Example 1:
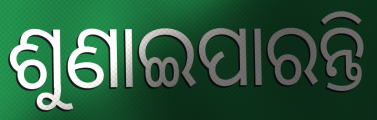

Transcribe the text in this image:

ଶୁଣାଇପାରନ୍ତି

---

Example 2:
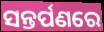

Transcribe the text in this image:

ସନ୍ତର୍ପଣରେ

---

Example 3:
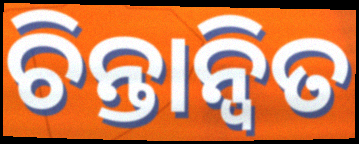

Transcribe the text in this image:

ଚିନ୍ତାନ୍ୱିତ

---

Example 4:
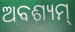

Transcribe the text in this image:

ଅବଶ୍ୟମ୍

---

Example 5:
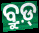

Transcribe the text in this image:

ବ୍ରୁଡ଼୍